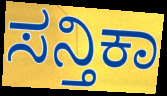
ಸನ್ತಿಕಾ